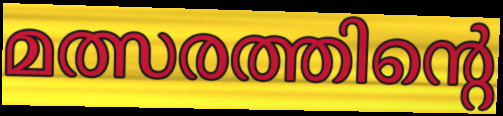
മത്സരത്തിന്റെ